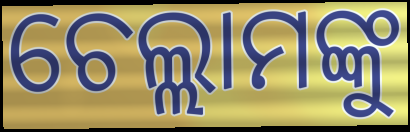
ଚେଲ୍ଲାମଙ୍କୁ